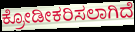
ಕ್ರೋಡೀಕರಿಸಲಾಗಿದೆ